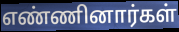
எண்ணினார்கள்